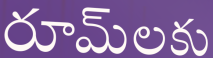
రూమ్‌లకు